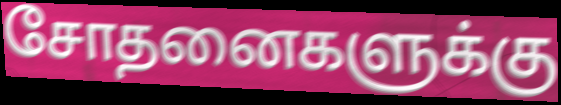
சோதனைகளுக்கு